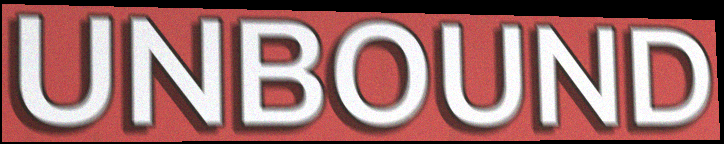
UNBOUND